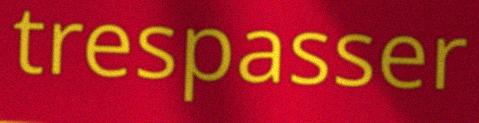
trespasser